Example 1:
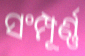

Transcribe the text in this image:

ସଂମ୍ପୂର୍ଣ୍ଣ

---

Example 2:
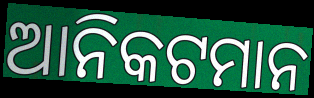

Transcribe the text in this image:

ଆନିକଟମାନ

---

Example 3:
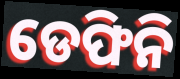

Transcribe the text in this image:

ଡେଫିନି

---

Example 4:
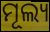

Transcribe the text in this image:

ମୂଲ୍ୟ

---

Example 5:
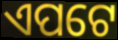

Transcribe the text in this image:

ଏପଟେ